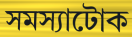
সমস্যাটোক